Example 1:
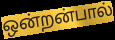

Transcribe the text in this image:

ஒன்றன்பால்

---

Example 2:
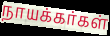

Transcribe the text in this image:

நாயக்கர்கள்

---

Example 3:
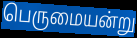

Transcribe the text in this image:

பெருமையன்று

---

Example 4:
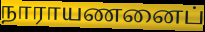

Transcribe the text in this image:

நாராயணனைப்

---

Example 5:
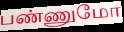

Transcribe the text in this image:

பண்ணுமோ